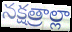
నక్షత్రాల్లా